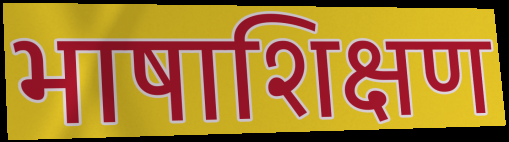
भाषाशिक्षण